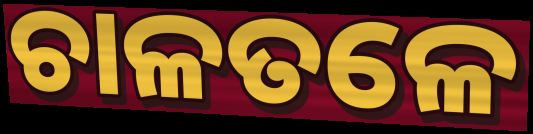
ଚାଳତଳେ